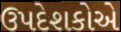
ઉપદેશકોએ